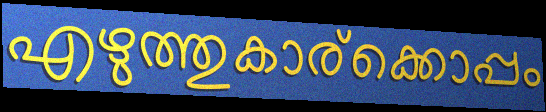
എഴുത്തുകാര്ക്കൊപ്പം